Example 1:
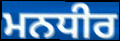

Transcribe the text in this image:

ਮਨਧੀਰ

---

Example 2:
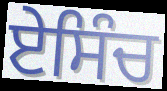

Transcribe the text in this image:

ਏਸਿੰਚ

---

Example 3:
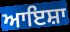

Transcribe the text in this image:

ਆਇਸ਼ਾ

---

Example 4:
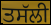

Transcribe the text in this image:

ਤਸੱਲੀ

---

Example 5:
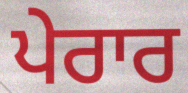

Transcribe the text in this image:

ਪੇਰਾਰ